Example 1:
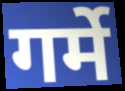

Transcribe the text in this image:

गर्मे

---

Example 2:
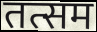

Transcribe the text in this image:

तत्सम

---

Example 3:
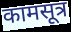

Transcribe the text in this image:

कामसूत्र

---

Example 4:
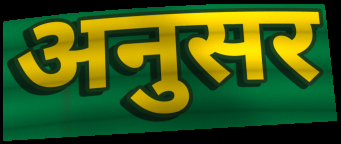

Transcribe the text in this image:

अनुसर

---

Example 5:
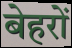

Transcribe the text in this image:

बेहरों